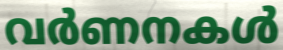
വർണനകൾ